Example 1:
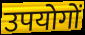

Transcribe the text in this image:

उपयोगों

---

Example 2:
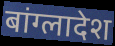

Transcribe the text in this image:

बांग्लादेश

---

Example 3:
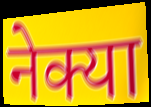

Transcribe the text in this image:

नेक्या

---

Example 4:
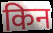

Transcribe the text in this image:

किन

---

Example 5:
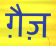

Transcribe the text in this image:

ग़ैज़